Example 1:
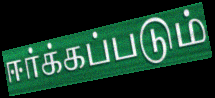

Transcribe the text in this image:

ஈர்க்கப்படும்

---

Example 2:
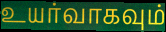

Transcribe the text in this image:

உயர்வாகவும்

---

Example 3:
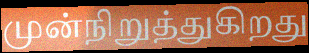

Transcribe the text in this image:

முன்நிறுத்துகிறது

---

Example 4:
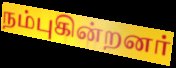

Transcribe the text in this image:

நம்புகின்றனர்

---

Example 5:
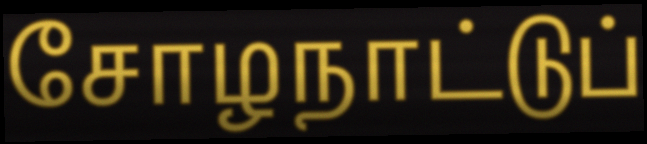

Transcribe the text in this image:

சோழநாட்டுப்